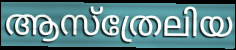
ആസ്ത്രേലിയ